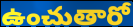
ఉంచుతారో